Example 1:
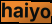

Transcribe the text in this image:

haiyo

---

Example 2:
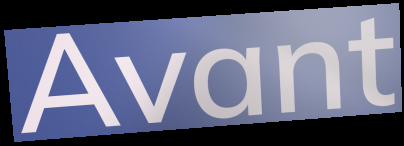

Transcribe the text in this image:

Avant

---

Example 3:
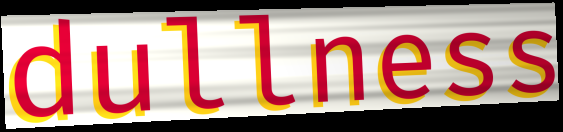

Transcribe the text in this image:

dullness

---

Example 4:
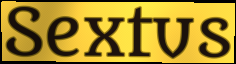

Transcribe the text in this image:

Sextus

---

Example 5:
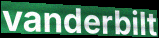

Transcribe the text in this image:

vanderbilt